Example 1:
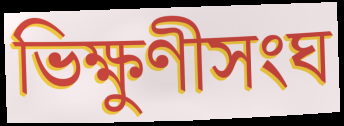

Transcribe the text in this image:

ভিক্ষুণীসংঘ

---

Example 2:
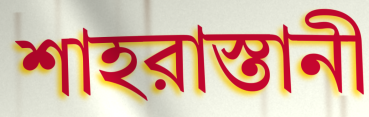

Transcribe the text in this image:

শাহরাস্তানী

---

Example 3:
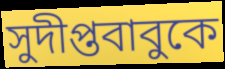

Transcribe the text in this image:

সুদীপ্তবাবুকে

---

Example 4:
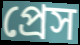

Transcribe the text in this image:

প্রেস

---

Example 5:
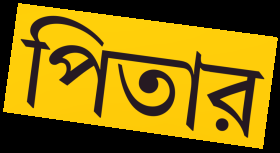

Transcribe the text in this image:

পিতার